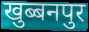
खुब्बनपुर